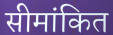
सीमांकित